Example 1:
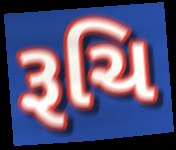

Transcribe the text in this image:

રૂચિ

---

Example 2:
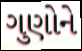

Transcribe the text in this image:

ગુણોને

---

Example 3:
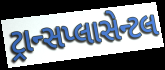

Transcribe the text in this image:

ટ્રાન્સપ્લાસેન્ટલ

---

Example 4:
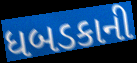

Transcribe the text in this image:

ધબડકાની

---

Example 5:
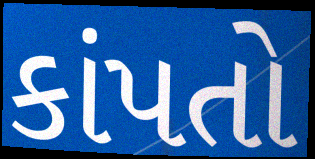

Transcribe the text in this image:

કાંપતો